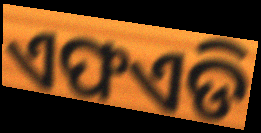
ଏଫଏଡି